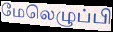
மேலெழுப்பி